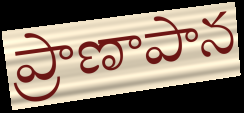
ప్రాణాపాన